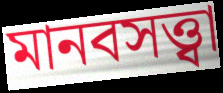
মানবসত্ত্বা